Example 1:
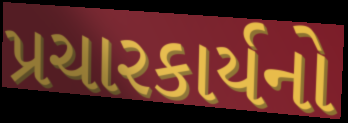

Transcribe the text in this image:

પ્રચારકાર્યનો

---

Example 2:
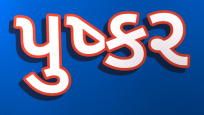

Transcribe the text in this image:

પુષ્કર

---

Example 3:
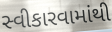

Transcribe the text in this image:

સ્વીકારવામાંથી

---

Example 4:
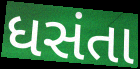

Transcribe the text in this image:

ધસંતા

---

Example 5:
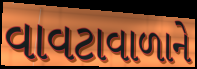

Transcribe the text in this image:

વાવટાવાળાને